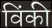
विंकी